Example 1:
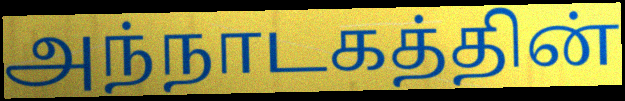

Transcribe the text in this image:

அந்நாடகத்தின்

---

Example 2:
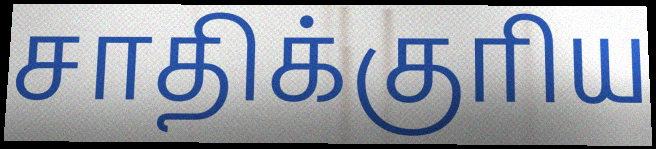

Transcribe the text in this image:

சாதிக்குரிய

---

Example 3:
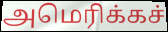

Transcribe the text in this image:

அமெரிக்கச்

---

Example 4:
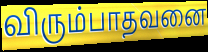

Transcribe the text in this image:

விரும்பாதவனை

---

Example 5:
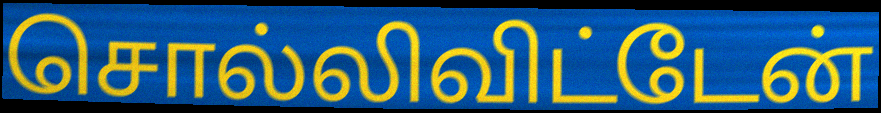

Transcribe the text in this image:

சொல்லிவிட்டேன்